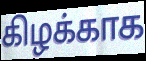
கிழக்காக